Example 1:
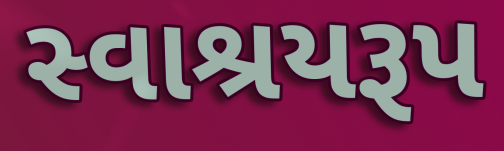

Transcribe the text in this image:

સ્વાશ્રયરૂપ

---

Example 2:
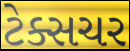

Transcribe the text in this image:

ટેક્સચર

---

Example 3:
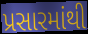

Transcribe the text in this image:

પ્રસારમાંથી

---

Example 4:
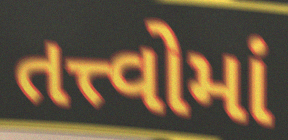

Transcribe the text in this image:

તત્ત્વોમાં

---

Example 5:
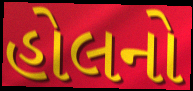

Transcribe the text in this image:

હોલનો